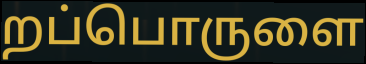
றப்பொருளை